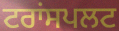
ਟਰਾਂਸਪਲਟ